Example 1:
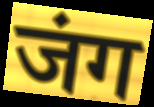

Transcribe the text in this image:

जंग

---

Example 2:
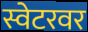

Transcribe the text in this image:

स्वेटरवर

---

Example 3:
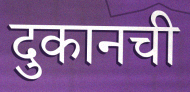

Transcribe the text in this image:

दुकानची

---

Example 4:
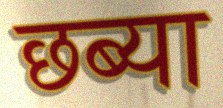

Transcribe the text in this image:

छब्या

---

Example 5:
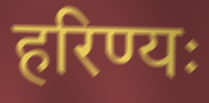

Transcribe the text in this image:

हरिण्यः